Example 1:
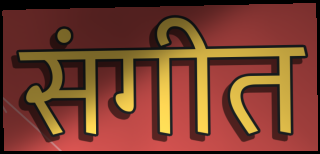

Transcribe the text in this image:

संगीत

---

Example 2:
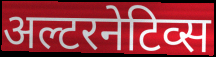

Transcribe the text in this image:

अल्टरनेटिव्स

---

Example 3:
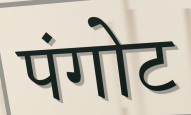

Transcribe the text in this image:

पंगोट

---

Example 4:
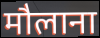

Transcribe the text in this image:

मौलाना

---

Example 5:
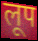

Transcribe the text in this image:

लूप